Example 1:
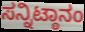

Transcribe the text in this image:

ಸನ್ನಿಟ್ಠಾನಂ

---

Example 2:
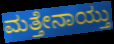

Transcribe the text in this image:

ಮತ್ತೇನಾಯ್ತು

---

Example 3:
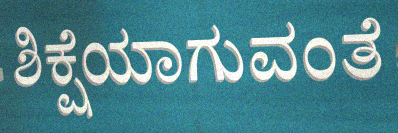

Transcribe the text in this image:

ಶಿಕ್ಷೆಯಾಗುವಂತೆ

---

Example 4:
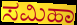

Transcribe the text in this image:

ಸಮಿಹಾ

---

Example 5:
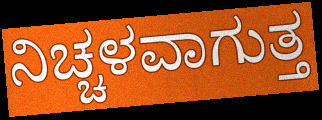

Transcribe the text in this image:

ನಿಚ್ಚಳವಾಗುತ್ತ